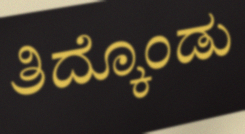
ತಿದ್ಕೊಂಡು